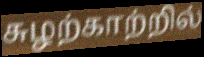
சுழற்காற்றில்